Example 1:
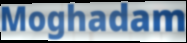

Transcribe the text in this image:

Moghadam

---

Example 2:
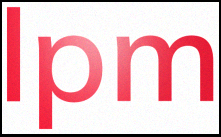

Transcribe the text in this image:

lpm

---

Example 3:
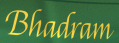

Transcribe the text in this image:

Bhadram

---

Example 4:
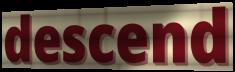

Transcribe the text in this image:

descend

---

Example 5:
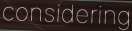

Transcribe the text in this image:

considering